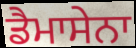
ਡੈਮਾਸੇਨਾ